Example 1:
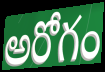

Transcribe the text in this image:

అరోగం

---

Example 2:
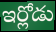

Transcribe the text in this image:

ఇర్లోడు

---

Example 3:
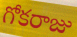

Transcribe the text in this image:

గోకరాజు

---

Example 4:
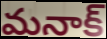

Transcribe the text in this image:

మనాక్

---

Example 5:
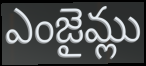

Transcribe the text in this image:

ఎంజైమ్లు